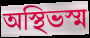
অস্থিভস্ম